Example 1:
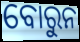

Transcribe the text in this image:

ବୋରୁନ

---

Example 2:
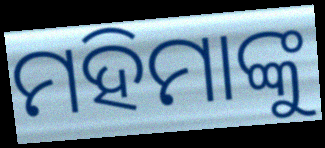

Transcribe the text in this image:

ମହିମାଙ୍କୁ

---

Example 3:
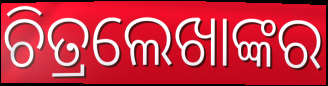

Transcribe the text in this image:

ଚିତ୍ରଲେଖାଙ୍କର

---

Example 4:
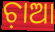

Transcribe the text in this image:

ଚ଼ାଆ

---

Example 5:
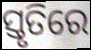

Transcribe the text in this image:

ସ୍ତୃତିରେ